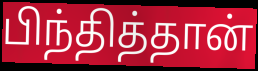
பிந்தித்தான்